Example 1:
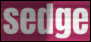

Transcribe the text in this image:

sedge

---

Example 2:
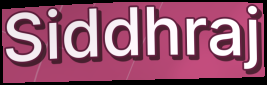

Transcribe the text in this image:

Siddhraj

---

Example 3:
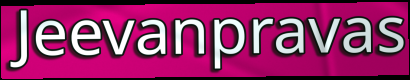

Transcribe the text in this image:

Jeevanpravas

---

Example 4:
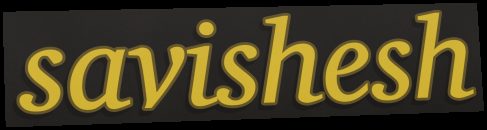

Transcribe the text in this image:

savishesh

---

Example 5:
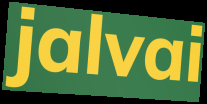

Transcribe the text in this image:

jalvai